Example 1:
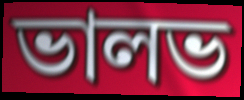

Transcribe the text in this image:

ভালভ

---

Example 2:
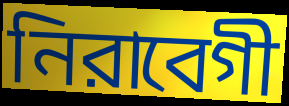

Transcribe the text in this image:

নিরাবেগী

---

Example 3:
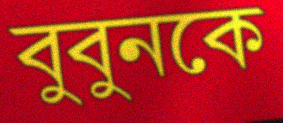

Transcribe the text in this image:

বুবুনকে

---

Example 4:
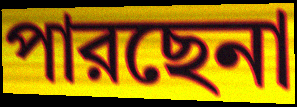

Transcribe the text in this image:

পারছেনা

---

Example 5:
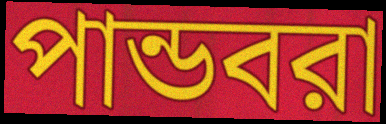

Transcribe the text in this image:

পান্ডবরা